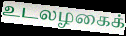
உடலழகைக்